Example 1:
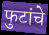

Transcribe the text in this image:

फुटांचे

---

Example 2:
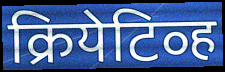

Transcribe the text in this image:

क्रियेटिव्ह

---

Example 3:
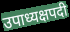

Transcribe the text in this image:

उपाध्यक्षपदी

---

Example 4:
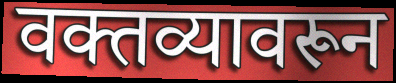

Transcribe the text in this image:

वक्तव्यावरून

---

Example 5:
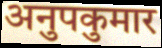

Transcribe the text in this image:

अनुपकुमार